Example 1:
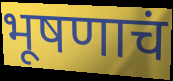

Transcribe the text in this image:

भूषणाचं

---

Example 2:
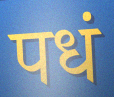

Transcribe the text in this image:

पधं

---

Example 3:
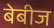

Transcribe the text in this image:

बेबीज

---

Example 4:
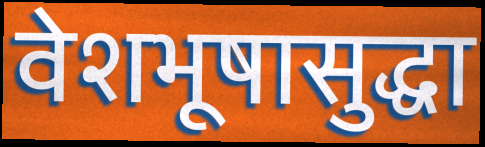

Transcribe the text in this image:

वेशभूषासुद्धा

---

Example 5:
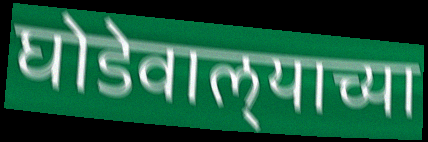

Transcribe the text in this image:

घोडेवाल्याच्या